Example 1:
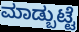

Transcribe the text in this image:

ಮಾಡ್ಬುಟ್ಟೆ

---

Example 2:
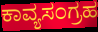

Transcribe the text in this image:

ಕಾವ್ಯಸಂಗ್ರಹ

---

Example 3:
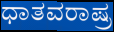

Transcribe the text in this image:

ಧಾತವರಾಷ್ರ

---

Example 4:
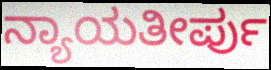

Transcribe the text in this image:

ನ್ಯಾಯತೀರ್ಪು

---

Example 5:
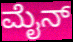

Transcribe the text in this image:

ಮೈನ್